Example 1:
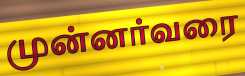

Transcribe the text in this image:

முன்னர்வரை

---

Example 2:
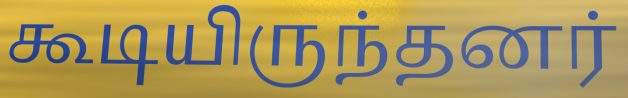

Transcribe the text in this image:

கூடியிருந்தனர்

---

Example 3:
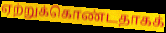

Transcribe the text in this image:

ஏற்றுக்கொண்டதாகக்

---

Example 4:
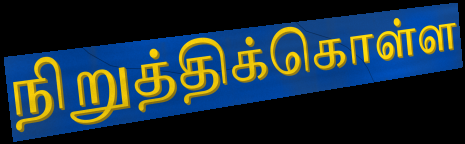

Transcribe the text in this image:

நிறுத்திக்கொள்ள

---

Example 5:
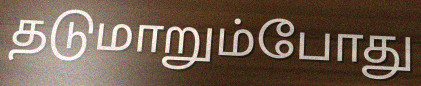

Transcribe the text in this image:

தடுமாறும்போது